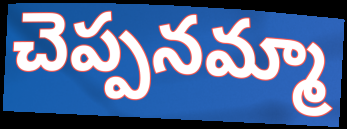
చెప్పనమ్మా